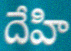
దేహి